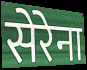
सेरेना